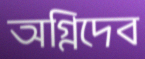
অগ্নিদেব